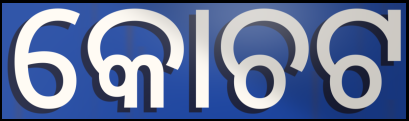
କୋଚଟ